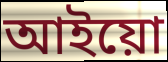
আইয়ো